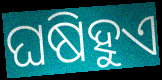
ଘଷିହୁଏ